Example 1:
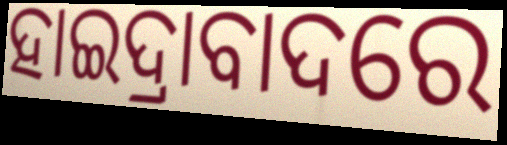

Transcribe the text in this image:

ହାଇଦ୍ରାବାଦରେ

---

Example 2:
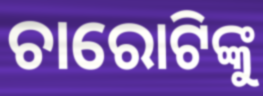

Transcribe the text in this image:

ଚାରୋଟିଙ୍କୁ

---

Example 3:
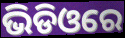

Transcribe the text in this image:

ଭିଡିଓରେ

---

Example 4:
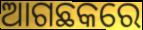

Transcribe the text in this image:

ଆଗଛକରେ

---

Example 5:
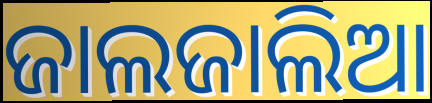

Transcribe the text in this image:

ଜାଲଜାଲିଆ